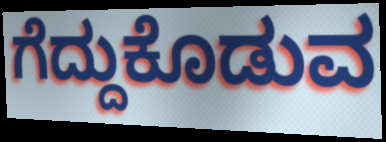
ಗೆದ್ದುಕೊಡುವ